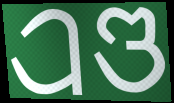
এণ্ড